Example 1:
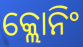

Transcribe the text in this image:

କ୍ଲୋନିଂ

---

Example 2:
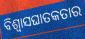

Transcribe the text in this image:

ବିଶ୍ୱାସଘାତକତାର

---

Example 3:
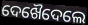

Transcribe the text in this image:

ଦେଖୈଦେଲେ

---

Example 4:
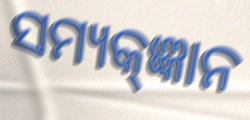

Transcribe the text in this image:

ସମ୍ୟକ୍‌ଜ୍ଞାନ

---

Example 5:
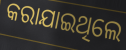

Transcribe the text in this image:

କରାଯାଇଥିଲେ